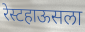
रेस्टहाऊसला